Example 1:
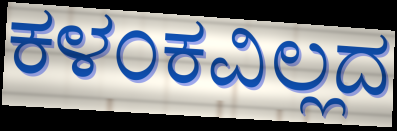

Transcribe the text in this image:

ಕಳಂಕವಿಲ್ಲದ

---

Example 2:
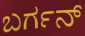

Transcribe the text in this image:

ಬರ್ಗನ್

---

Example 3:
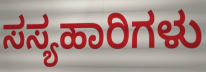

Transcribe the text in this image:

ಸಸ್ಯಹಾರಿಗಳು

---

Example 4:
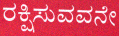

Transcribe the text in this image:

ರಕ್ಷಿಸುವವನೇ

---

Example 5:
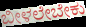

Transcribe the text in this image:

ಬೀಳಲೇಬೇಕು